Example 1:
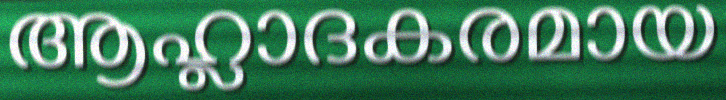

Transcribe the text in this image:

ആഹ്ലാദകരമായ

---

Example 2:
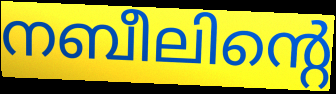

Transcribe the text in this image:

നബീലിന്റെ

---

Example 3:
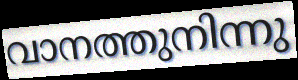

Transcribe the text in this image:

വാനത്തുനിന്നു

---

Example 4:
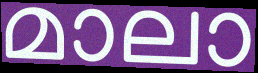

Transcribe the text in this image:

മാലാ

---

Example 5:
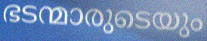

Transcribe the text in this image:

ഭടന്മാരുടെയും